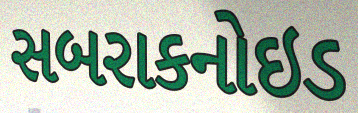
સબરાકનોઇડ